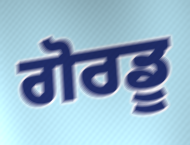
ਗੋਰਡੂ